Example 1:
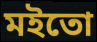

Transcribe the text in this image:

মইতো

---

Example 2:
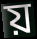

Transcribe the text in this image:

য়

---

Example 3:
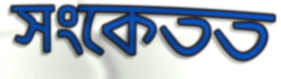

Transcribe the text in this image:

সংকেতত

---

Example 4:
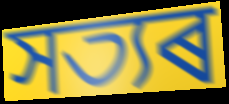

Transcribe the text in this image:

সত্যৰ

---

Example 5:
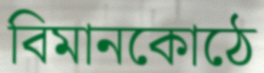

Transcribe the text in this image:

বিমানকোঠে